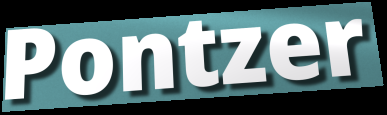
Pontzer